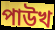
পাউখ